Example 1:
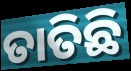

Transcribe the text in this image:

ତାତିଛି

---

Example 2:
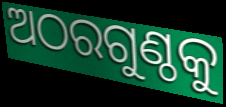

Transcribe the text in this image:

ଅଠରଗୁଣ୍ଠକୁ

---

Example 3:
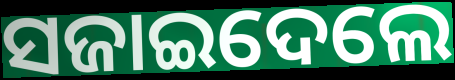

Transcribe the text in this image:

ସଜାଇଦେଲେ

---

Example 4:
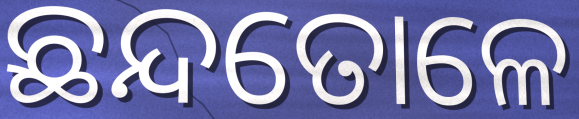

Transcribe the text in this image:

ଛନ୍ଦତୋଳେ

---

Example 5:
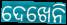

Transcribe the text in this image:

ଦେଖେନି